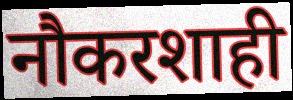
नौकरशाही